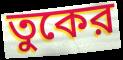
তুকের